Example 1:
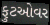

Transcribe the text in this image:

ફુટઓવર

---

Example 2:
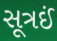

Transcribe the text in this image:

સૂત્રઈં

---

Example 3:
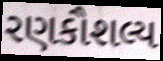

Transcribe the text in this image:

રણકૌશલ્ય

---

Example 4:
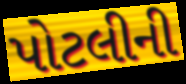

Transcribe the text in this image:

પોટલીની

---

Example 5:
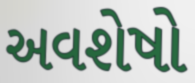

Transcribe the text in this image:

અવશેષો